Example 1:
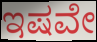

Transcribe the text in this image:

ಇಷವೇ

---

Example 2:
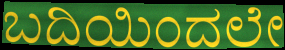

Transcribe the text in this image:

ಬದಿಯಿಂದಲೇ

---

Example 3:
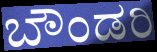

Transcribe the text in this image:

ಬೌಂಡರಿ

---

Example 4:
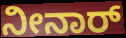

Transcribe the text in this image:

ನೀನಾರ್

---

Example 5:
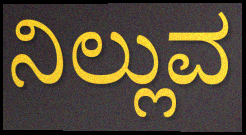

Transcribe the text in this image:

ನಿಲ್ಲುವ